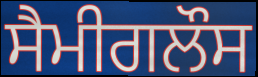
ਸੈਮੀਗਲੌਸ